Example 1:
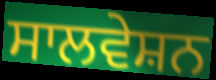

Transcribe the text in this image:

ਸਾਲਵੇਸ਼ਨ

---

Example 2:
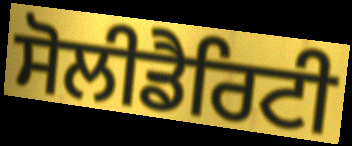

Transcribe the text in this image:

ਸੋਲੀਡੈਰਿਟੀ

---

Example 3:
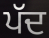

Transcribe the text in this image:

ਪੱਦ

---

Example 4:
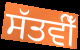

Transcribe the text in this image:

ਸੱਤਵੀਁ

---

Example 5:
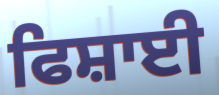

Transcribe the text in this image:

ਫਿਸ਼ਾਈ